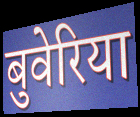
बुवेरिया